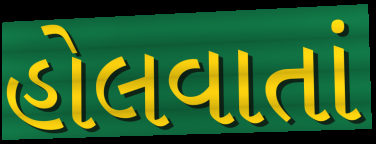
હોલવાતાં